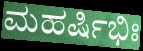
ಮಹರ್ಷಿಭಿಃ